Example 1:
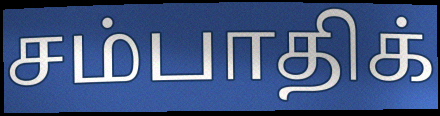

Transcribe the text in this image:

சம்பாதிக்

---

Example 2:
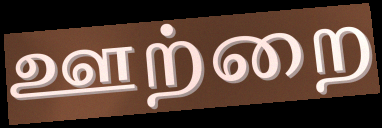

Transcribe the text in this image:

ஊற்றை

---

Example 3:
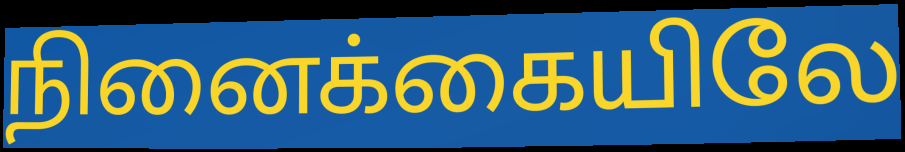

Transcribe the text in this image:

நினைக்கையிலே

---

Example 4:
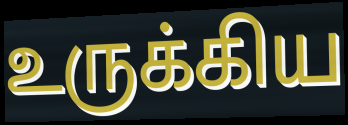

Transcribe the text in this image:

உருக்கிய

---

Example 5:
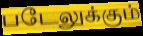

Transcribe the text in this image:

படேலுக்கும்